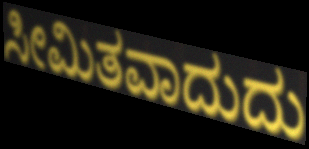
ಸೀಮಿತವಾದುದು